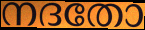
നദതോ